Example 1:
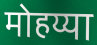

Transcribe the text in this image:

मोहय्या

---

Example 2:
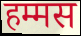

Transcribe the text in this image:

हम्मस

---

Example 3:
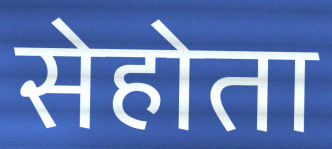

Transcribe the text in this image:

सेहोता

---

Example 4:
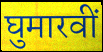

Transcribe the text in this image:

घुमारवीं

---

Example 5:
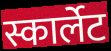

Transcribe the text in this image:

स्कार्लेट